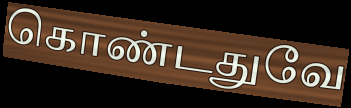
கொண்டதுவே